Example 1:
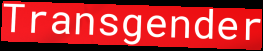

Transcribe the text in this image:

Transgender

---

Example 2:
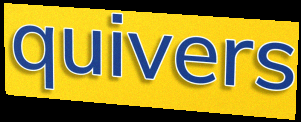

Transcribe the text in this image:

quivers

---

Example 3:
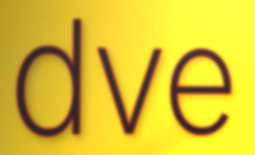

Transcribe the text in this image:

dve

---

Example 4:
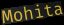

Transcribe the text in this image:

Mohita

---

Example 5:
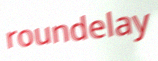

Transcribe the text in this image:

roundelay